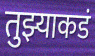
तुझ्याकडं